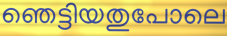
ഞെട്ടിയതുപോലെ